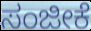
ಸಂಜೀಕೆ